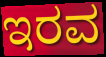
ಇರವ